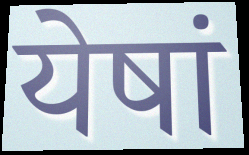
येषां